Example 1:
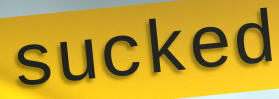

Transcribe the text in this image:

sucked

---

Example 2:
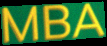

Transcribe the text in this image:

MBA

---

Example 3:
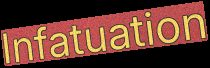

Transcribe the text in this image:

Infatuation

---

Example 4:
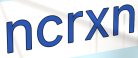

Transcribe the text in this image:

ncrxn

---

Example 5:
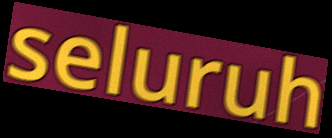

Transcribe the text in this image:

seluruh